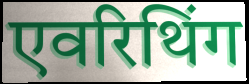
एवरिथिंग